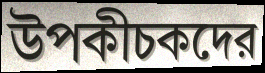
উপকীচকদের